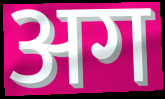
अग